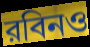
রবিনও